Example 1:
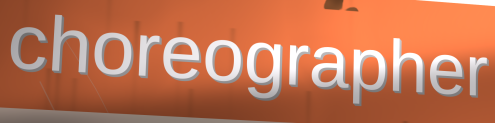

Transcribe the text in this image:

choreographer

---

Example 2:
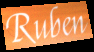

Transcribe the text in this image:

Ruben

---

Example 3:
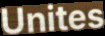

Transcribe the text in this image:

Unites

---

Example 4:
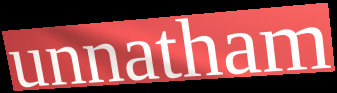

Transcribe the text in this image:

unnatham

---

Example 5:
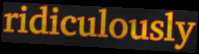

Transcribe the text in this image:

ridiculously